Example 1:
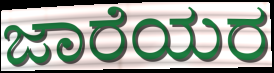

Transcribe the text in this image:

ಜಾರೆಯರ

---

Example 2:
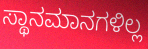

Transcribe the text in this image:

ಸ್ಥಾನಮಾನಗಳಿಲ್ಲ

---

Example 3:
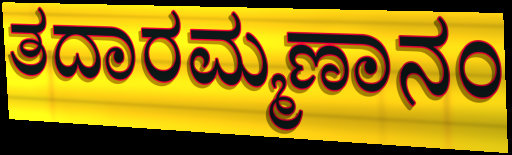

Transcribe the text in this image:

ತದಾರಮ್ಮಣಾನಂ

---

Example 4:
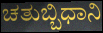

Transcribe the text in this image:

ಚತುಬ್ಬಿಧಾನಿ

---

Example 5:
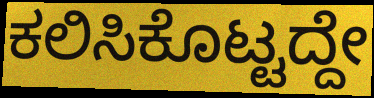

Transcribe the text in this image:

ಕಲಿಸಿಕೊಟ್ಟದ್ದೇ